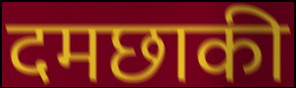
दमछाकी